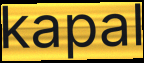
kapal